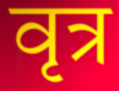
वृत्र